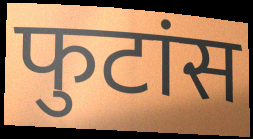
फुटांस